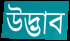
উদ্ভাব